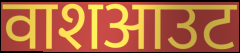
वाशआउट